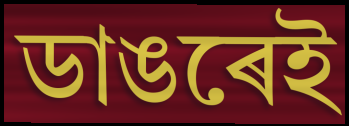
ডাঙৰেই